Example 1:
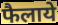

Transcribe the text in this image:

फैलाये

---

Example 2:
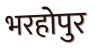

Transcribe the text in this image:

भरहोपुर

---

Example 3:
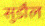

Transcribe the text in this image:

सुडौल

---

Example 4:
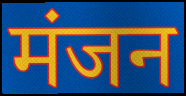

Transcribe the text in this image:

मंजन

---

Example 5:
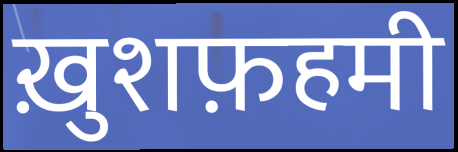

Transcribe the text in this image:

ख़ुशफ़हमी